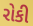
રોકી